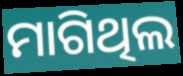
ମାଗିଥିଲ